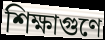
শিক্ষাগুণে